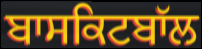
ਬਾਸਕਿਟਬਾੱਲ